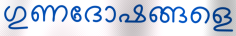
ഗുണദോഷങ്ങളെ